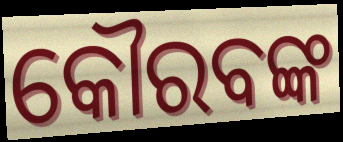
କୌରବଙ୍କ